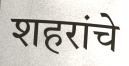
शहरांचे